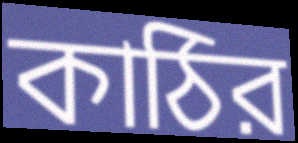
কাঠির